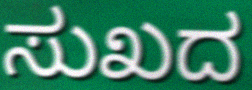
ಸುಖದ